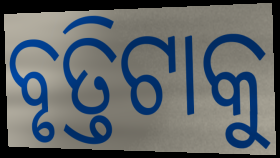
ବୃତ୍ତିଟାକୁ